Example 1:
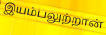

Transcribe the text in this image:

இயம்பலுற்றான்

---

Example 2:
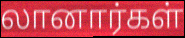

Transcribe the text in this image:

லானார்கள்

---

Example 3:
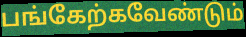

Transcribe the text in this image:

பங்கேற்கவேண்டும்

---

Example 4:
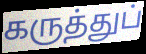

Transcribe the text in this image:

கருத்துப்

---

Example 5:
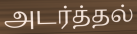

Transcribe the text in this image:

அடர்த்தல்